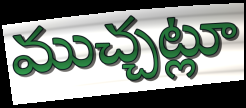
ముచ్చట్లూ